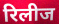
रिलीज